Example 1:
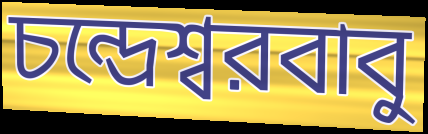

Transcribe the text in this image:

চন্দ্রেশ্বরবাবু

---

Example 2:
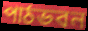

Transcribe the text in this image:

পাঠভবন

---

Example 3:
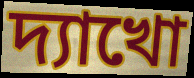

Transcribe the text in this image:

দ্যাখো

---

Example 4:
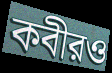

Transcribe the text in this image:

কবীরও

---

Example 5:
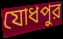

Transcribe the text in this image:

যোধপুর